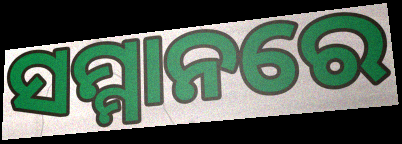
ସମ୍ମାନରେ